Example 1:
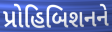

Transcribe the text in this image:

પ્રોહિબિશનને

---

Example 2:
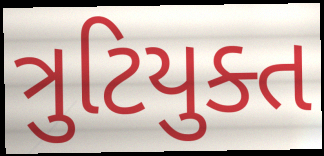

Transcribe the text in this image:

ત્રુટિયુક્ત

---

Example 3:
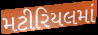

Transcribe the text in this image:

મટીરિયલમાં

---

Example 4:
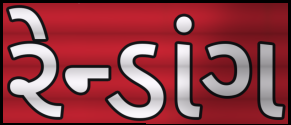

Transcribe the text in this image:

રેન્ડાંગ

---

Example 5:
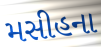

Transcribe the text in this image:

મસીહના